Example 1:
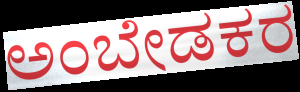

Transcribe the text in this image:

ಅಂಬೇಡಕರ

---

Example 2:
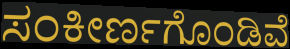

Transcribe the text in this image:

ಸಂಕೀರ್ಣಗೊಂಡಿವೆ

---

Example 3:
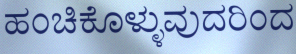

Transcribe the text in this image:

ಹಂಚಿಕೊಳ್ಳುವುದರಿಂದ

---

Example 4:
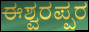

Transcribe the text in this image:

ಈಶ್ವರಪ್ಪರ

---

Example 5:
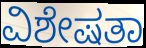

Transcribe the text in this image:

ವಿಶೇಷತಾ